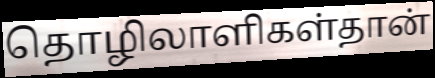
தொழிலாளிகள்தான்